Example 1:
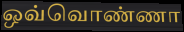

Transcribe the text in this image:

ஒவ்வொண்ணா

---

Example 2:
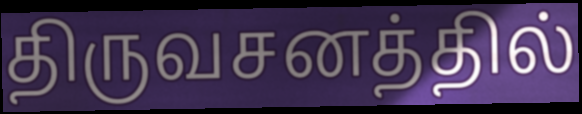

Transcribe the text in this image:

திருவசனத்தில்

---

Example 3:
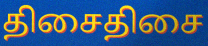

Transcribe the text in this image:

திசைதிசை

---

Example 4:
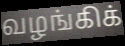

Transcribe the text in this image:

வழங்கிக்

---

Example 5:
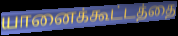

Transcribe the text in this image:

யானைக்கூட்டத்தை